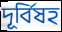
দূর্বিষহ